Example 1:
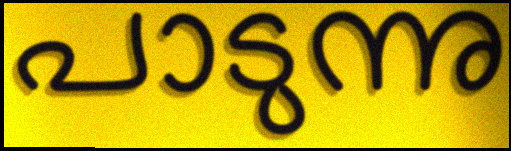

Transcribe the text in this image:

പാടുന്നു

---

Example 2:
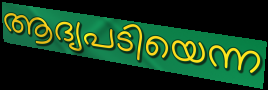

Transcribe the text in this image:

ആദ്യപടിയെന്ന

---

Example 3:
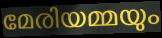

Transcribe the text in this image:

മേരിയമ്മയും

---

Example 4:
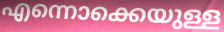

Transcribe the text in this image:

എന്നൊക്കെയുള്ള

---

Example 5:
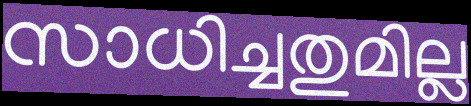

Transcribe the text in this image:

സാധിച്ചതുമില്ല